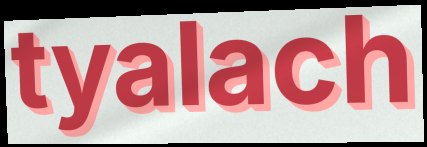
tyalach